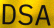
DSA